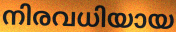
നിരവധിയായ